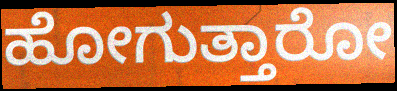
ಹೋಗುತ್ತಾರೋ